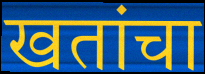
खतांचा